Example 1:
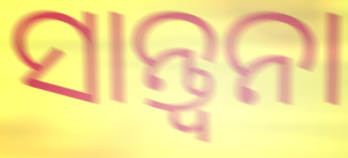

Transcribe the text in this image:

ସାନ୍ତ୍ୱନା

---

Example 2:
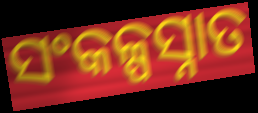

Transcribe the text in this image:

ସଂକଳ୍ପସ୍ନାତ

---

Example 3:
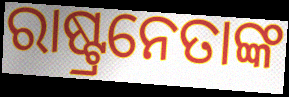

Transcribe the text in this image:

ରାଷ୍ଟ୍ରନେତାଙ୍କ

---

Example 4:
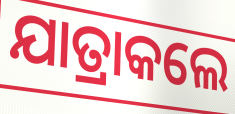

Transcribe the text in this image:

ଯାତ୍ରାକଲେ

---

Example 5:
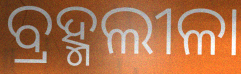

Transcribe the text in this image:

ବ୍ରହ୍ମଲୀଳା